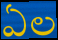
ఏల